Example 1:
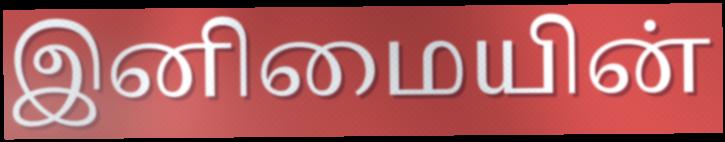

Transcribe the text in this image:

இனிமையின்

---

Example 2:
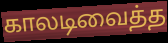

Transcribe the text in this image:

காலடிவைத்த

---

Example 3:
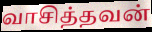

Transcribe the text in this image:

வாசித்தவன்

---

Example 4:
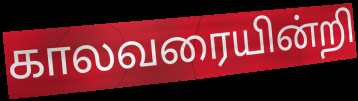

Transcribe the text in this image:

காலவரையின்றி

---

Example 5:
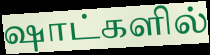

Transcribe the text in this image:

ஷாட்களில்